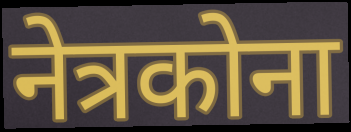
नेत्रकोना